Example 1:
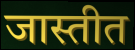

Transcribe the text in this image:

जास्तीत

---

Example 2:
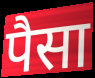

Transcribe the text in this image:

पैसा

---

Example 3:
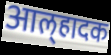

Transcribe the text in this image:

आल्हादक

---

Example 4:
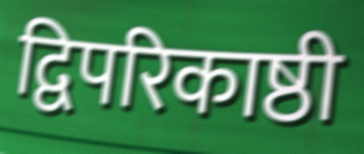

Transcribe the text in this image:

द्विपरिकाष्ठी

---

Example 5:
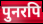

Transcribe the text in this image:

पुनरपि